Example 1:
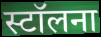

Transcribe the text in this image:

स्टॉलना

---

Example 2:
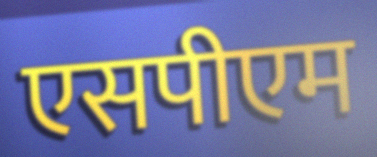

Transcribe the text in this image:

एसपीएम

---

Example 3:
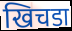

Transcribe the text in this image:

खिचडा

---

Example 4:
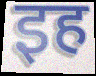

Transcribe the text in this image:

इह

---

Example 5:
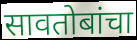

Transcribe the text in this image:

सावतोबांचा